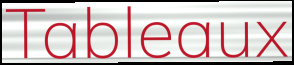
Tableaux